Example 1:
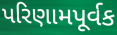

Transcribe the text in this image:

પરિણામપૂર્વક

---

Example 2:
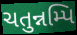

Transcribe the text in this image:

ચતુન્નમ્પિ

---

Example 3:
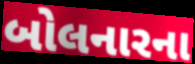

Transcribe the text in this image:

બોલનારના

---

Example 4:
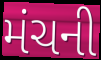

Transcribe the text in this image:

મંચની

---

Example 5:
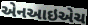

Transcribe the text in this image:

એનઆઇએચ